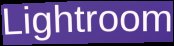
Lightroom